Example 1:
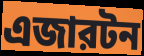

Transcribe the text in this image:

এজারটন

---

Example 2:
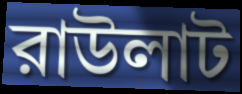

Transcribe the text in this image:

রাউলাট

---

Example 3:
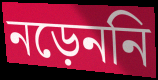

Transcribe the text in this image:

নড়েননি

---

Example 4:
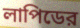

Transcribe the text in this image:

লাপিডের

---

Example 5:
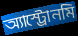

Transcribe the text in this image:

অ্যাস্ট্রোনমি